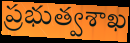
ప్రభుత్వశాఖ